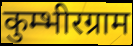
कुम्भीरग्राम